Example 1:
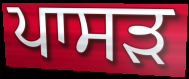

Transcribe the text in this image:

ਪਾਸੜ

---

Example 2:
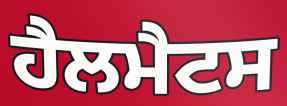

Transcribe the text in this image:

ਹੈਲਮੈਟਸ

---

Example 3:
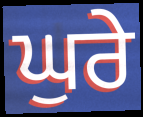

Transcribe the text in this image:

ਘੁਰੇ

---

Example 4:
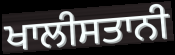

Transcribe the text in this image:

ਖਾਲੀਸਤਾਨੀ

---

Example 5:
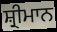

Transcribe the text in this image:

ਸ਼੍ਰੀਮਾਨ